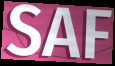
SAF